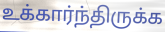
உக்கார்ந்திருக்க